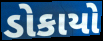
ડોકાયો